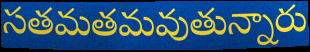
సతమతమవుతున్నారు